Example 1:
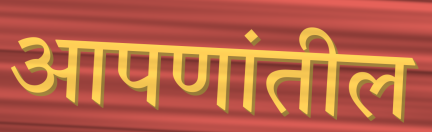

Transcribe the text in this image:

आपणांतील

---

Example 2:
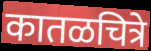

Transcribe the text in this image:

कातळचित्रे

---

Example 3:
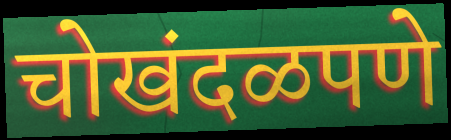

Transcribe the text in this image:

चोखंदळपणे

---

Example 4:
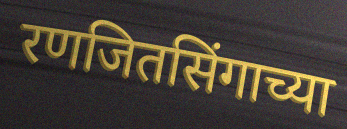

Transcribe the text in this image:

रणजितसिंगाच्या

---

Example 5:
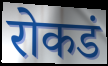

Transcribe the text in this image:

रोकडं